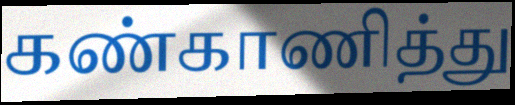
கண்காணித்து